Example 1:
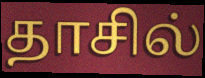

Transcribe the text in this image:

தாசில்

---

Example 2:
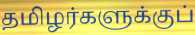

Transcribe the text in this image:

தமிழர்களுக்குப்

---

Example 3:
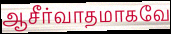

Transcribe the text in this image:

ஆசீர்வாதமாகவே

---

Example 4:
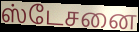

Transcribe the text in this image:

ஸ்டேசனை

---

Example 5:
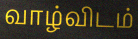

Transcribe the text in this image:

வாழ்விடம்